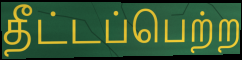
தீட்டப்பெற்ற